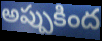
అప్పుకింద